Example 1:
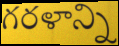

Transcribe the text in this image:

గరళాన్ని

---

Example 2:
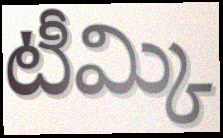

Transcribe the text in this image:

టీమ్కి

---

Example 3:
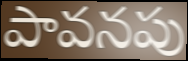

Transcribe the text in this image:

పావనపు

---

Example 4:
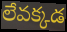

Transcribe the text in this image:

లేవక్కడ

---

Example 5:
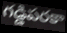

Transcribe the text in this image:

గడ్డిపరకా